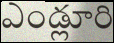
ఎండ్లూరి